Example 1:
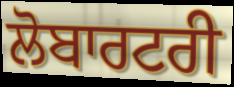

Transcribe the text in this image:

ਲੋਬਾਰਟਰੀ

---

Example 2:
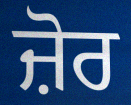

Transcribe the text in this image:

ਜ਼ੋਰ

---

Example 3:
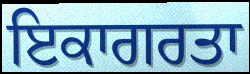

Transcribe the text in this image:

ਇਕਾਗਰਤਾ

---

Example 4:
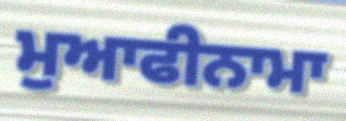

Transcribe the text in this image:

ਮੁਆਫੀਨਾਮਾ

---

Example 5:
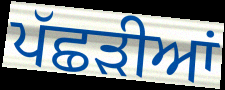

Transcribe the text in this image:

ਪੱਛੜੀਆਂ